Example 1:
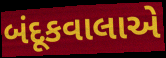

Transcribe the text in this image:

બંદૂકવાલાએ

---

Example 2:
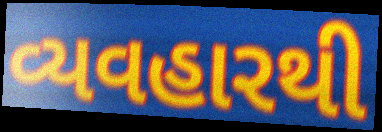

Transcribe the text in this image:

વ્યવહારથી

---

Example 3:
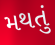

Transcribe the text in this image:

મથતું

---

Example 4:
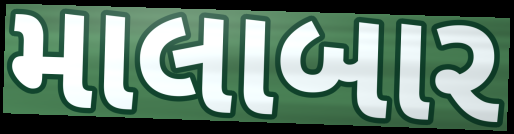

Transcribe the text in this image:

માલાબાર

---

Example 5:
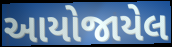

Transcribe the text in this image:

આયોજાયેલ